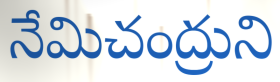
నేమిచంద్రుని